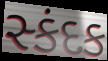
સ્કંદક